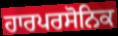
ਹਾਰਪਰਸੋਨਿਕ